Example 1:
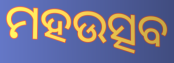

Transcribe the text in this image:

ମହଉତ୍ସବ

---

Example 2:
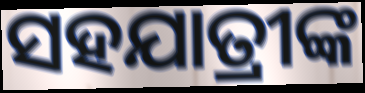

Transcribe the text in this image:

ସହଯାତ୍ରୀଙ୍କ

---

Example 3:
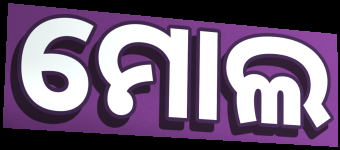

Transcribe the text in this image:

ମୋଲ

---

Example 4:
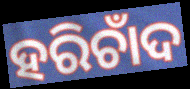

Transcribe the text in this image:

ହରିଚାଁଦ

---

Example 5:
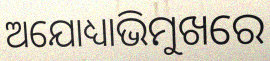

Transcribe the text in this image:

ଅଯୋଧ୍ୟାଭିମୁଖରେ